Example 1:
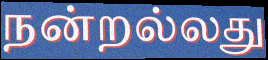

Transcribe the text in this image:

நன்றல்லது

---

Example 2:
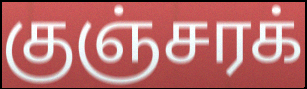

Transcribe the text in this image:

குஞ்சரக்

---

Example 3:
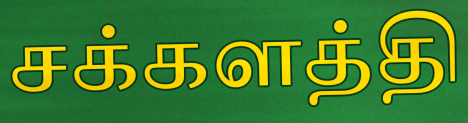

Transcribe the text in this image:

சக்களத்தி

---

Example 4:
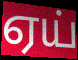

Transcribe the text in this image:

ஏய்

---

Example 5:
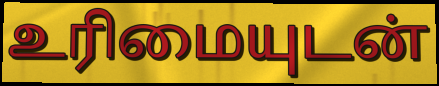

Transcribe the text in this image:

உரிமையுடன்